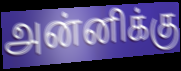
அன்னிக்கு